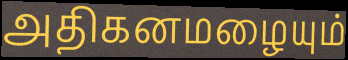
அதிகனமழையும்